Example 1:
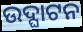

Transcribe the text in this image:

ଉଦ୍ଘାଟନ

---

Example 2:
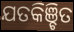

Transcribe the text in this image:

ଯତକିଞ୍ଚିତ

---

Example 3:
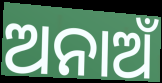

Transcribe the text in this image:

ଅନାଅଁ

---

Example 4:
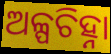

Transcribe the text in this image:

ଅଳ୍ପଚିହ୍ନା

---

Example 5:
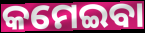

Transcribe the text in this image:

କମେଇବା